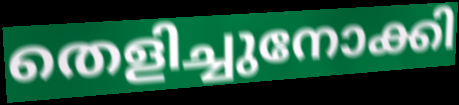
തെളിച്ചുനോക്കി